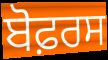
ਬੋਫ਼ਰਸ